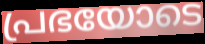
പ്രഭയോടെ